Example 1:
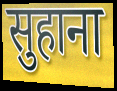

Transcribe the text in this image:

सुहाना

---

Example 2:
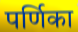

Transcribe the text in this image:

पर्णिका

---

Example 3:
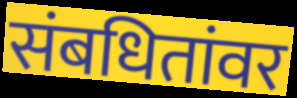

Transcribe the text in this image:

संबधितांवर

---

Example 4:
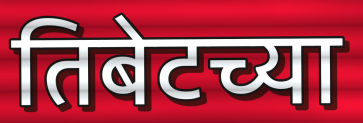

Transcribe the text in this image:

तिबेटच्या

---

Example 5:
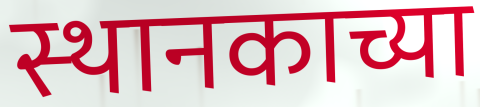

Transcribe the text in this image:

स्थानकाच्या